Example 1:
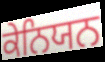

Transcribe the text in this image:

ਕੇਨਿਯਨ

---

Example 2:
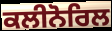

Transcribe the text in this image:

ਕਲੀਨੋਰਿਲ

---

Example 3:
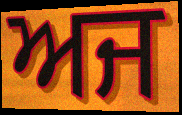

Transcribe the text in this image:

ਅਜ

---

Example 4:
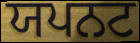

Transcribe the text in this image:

ਯਪਨਟ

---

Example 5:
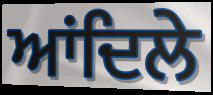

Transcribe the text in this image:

ਆਂਦਿਲੇ